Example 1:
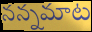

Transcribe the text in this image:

నన్నమాట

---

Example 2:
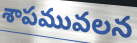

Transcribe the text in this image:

శాపమువలన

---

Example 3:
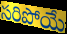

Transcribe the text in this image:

సరిపోయే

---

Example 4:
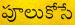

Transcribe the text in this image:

పూలుకోసే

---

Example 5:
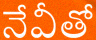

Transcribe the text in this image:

నేవీతో